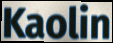
Kaolin